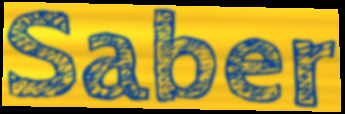
Saber